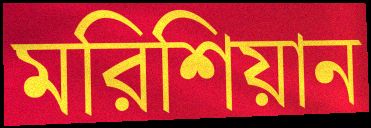
মরিশিয়ান